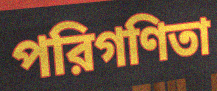
পরিগণিতা